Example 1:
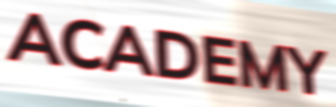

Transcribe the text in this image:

ACADEMY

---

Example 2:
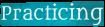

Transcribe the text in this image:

Practicing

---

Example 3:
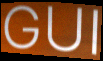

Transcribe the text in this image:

GUI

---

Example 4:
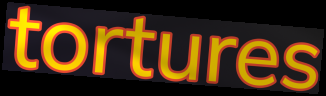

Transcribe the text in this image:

tortures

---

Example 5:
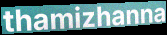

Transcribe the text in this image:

thamizhanna